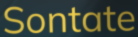
Sontate